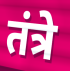
तंत्रे